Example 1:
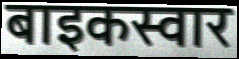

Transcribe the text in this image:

बाइकस्वार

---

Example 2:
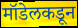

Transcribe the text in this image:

मॉडेलकडून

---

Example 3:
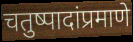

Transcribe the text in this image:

चतुष्पादांप्रमाणे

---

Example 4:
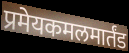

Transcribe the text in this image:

प्रमेयकमलमार्तंड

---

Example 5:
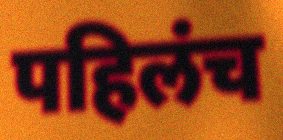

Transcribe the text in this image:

पहिलंच